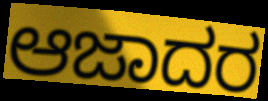
ಆಜಾದರ